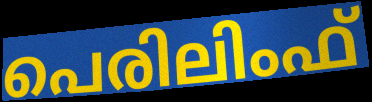
പെരിലിംഫ്